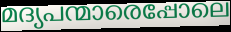
മദ്യപന്മാരെപ്പോലെ